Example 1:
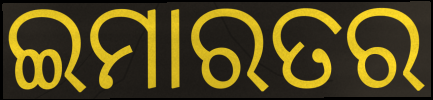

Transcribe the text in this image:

ଇମାରତର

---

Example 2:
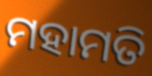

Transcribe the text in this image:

ମହାମତି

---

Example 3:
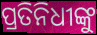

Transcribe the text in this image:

ପ୍ରତିନିଧୀଙ୍କୁ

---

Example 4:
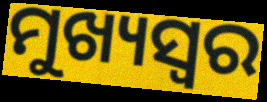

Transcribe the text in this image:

ମୁଖ୍ୟସ୍ୱର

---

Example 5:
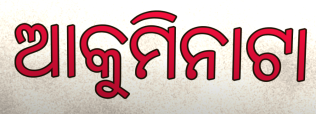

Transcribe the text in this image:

ଆକୁମିନାଟା